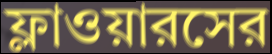
ফ্লাওয়ারসের